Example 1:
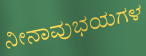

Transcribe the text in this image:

ನೀನಾವುಭಯಗಳ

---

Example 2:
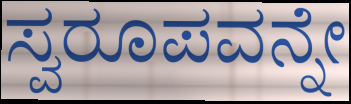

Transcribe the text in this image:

ಸ್ವರೂಪವನ್ನೇ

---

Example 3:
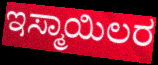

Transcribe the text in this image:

ಇಸ್ಮಾಯಿಲರ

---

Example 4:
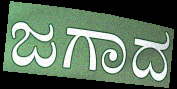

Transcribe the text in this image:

ಜಗಾದ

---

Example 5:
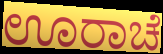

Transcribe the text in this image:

ಊರಾಚೆ